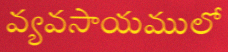
వ్యవసాయములో